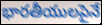
భారతీయులపైనే